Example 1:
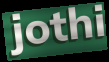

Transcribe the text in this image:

jothi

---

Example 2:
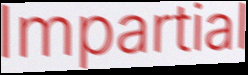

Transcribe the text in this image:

Impartial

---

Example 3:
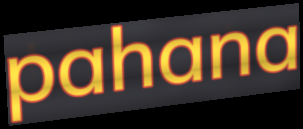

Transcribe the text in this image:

pahana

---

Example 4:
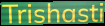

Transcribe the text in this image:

Trishasti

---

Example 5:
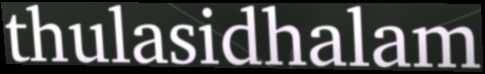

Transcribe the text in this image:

thulasidhalam